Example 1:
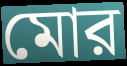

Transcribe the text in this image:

মোর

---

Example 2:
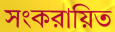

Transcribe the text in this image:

সংকরায়িত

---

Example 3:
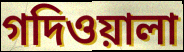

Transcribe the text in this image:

গদিওয়ালা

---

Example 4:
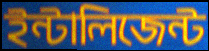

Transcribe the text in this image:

ইন্টালিজেন্ট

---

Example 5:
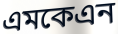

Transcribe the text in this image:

এমকেএন